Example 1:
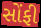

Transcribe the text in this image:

સોંફી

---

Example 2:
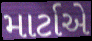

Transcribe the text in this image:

માર્ટાએ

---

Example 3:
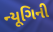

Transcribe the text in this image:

ન્યૂગિની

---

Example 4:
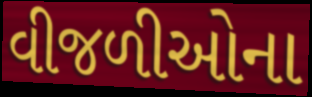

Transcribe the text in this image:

વીજળીઓના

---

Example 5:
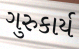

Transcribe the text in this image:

ગુરુકાર્ય